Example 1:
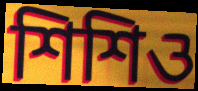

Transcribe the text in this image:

শিশিও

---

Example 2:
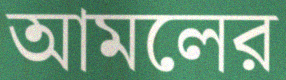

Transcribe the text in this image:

আমলের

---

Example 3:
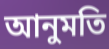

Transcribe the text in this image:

আনুমতি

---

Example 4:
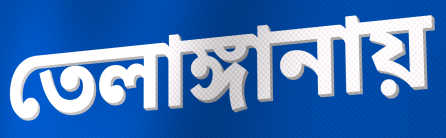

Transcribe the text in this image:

তেলাঙ্গানায়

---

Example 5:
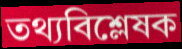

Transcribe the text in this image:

তথ্যবিশ্লেষক